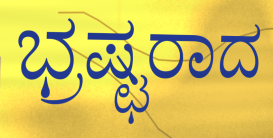
ಭ್ರಷ್ಟರಾದ